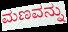
ಮಣವನ್ನು